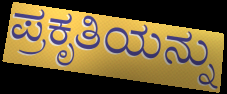
ಪ್ರಕೃತಿಯನ್ನು